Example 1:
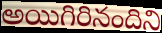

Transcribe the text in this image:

అయిగిరినందిని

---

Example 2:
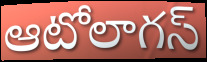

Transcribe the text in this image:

ఆటోలాగస్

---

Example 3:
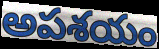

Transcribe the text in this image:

అపశయం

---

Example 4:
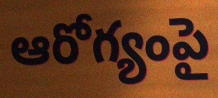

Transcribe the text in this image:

ఆరోగ్యంపై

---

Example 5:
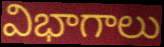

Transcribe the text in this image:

విభాగాలు